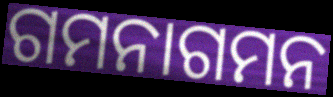
ଗମନାଗମନ